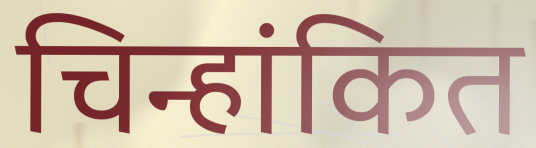
चिन्हांकित